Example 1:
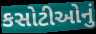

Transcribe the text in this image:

કસોટીઓનું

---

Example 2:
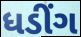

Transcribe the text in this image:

ધડીંગ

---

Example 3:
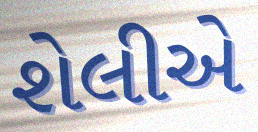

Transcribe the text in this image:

શેલીએ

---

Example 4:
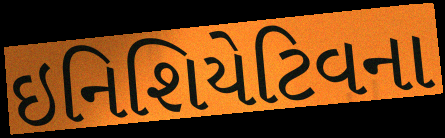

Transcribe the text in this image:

ઇનિશિયેટિવના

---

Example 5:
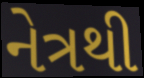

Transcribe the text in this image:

નેત્રથી